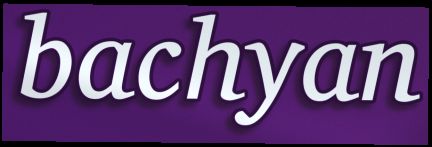
bachyan